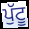
ਪੁੱਟੂ